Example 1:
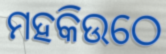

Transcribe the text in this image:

ମହକିଉଠେ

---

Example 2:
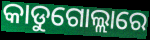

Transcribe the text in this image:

କାଡୁଗୋଲ୍ଲାରେ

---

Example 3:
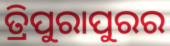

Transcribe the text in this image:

ତ୍ରିପୁରାପୁରର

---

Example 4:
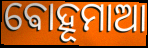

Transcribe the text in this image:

ଵୋହୂମାଆ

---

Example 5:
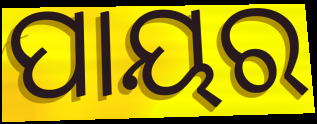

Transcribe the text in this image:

ପାୟର